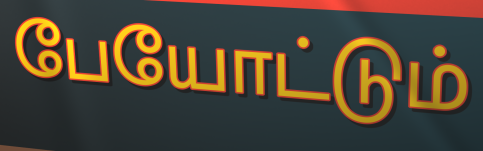
பேயோட்டும்